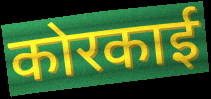
कोरकाई